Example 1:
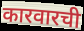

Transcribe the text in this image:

कारवारची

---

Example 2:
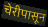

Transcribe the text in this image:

चेरीपासून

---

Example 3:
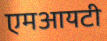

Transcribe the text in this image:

एमआयटी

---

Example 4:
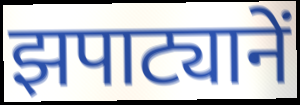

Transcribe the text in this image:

झपाट्यानें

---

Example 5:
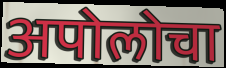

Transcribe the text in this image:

अपोलोचा